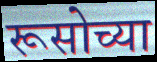
रूसोच्या